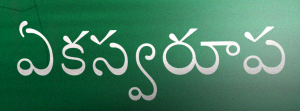
ఏకస్వరూప